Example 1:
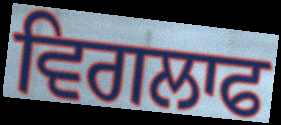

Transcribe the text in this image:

ਵਿਗਲਾਫ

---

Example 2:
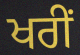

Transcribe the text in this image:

ਖਰੀਂ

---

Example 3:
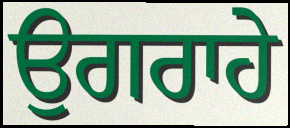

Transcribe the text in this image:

ਉਗਰਾਹੇ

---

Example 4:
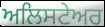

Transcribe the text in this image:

ਅਲਿਸਟੇਅਰ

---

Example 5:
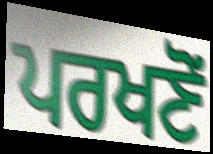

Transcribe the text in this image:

ਪਰਖਣੋਂ